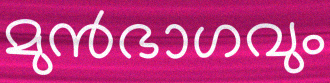
മുൻഭാഗവും